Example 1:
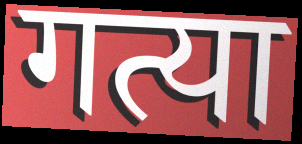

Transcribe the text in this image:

गत्या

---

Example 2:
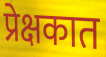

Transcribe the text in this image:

प्रेक्षकात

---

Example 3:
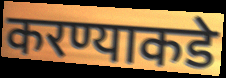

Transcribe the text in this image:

करण्याकडे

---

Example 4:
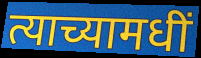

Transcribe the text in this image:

त्याच्यामधीं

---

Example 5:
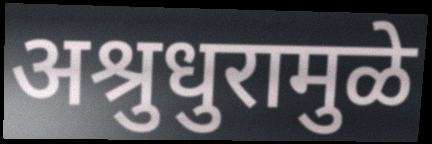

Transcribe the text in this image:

अश्रुधुरामुळे